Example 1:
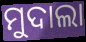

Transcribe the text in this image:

ମୁଦାଲା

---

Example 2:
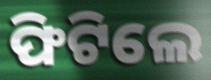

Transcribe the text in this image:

ଫିଟିଲେ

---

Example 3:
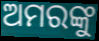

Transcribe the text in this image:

ଅମରଙ୍କୁ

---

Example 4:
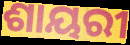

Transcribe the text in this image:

ଶାୟରୀ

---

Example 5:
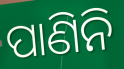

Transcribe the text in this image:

ପାଣିନି